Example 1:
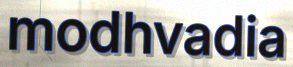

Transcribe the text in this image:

modhvadia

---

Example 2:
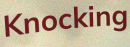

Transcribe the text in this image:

Knocking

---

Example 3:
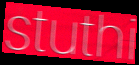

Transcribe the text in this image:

stuthi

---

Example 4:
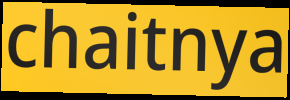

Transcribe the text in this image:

chaitnya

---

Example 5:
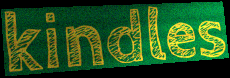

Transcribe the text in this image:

kindles